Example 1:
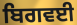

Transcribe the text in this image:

ਬਿਗਵਈ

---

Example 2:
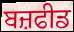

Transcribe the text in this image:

ਬਜ਼ਫੀਡ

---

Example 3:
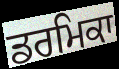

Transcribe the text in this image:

ਡਰਮਿਕਾ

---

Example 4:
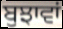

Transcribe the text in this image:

ਬੁਝਾਵਾਂ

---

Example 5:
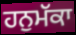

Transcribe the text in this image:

ਹਨੁਮੱਕਾ